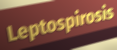
Leptospirosis